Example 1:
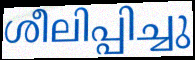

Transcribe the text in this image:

ശീലിപ്പിച്ചു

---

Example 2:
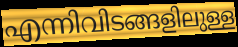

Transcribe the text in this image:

എന്നിവിടങ്ങളിലുള്ള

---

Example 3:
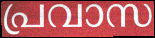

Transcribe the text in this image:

പ്രവാസ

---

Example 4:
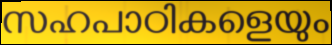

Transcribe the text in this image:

സഹപാഠികളെയും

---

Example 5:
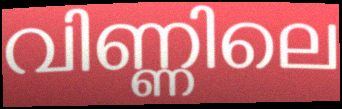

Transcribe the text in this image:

വിണ്ണിലെ